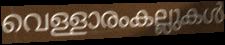
വെള്ളാരംകല്ലുകൾ